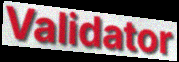
Validator